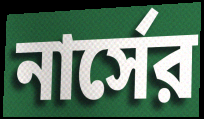
নার্সের